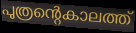
പുത്രന്റെകാലത്ത്